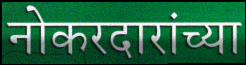
नोकरदारांच्या